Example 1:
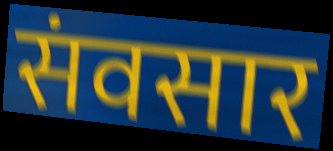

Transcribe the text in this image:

संवसार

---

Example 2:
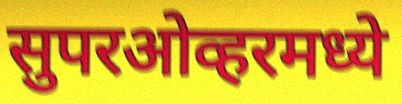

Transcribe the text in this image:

सुपरओव्हरमध्ये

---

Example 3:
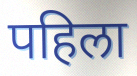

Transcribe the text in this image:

पहिला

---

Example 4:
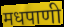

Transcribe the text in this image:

मधपाणी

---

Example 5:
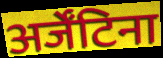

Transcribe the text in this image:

अर्जेंटिना